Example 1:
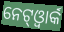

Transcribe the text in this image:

ନେଟ୍ଓ୍ବାର୍କ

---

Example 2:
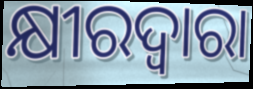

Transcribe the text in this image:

କ୍ଷୀରଦ୍ଵାରା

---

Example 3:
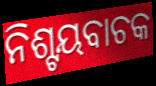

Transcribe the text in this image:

ନିଶ୍ଟୟବାଚକ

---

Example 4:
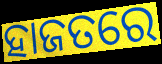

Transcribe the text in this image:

ହାଜତରେ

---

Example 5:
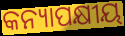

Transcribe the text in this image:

କନ୍ୟାପକ୍ଷୀୟ